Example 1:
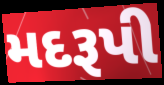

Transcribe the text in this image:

મદરૂપી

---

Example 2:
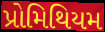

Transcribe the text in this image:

પ્રોમિથિયમ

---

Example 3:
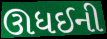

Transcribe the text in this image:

ઊધઈની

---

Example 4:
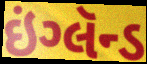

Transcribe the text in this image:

ઇંગ્લૅન્ડ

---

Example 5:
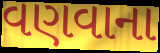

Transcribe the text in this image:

વણવાના